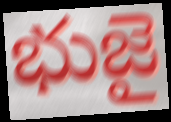
భుజై